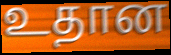
உதான